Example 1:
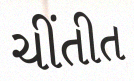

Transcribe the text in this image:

ચીંતીત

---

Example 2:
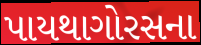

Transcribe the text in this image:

પાયથાગોરસના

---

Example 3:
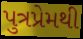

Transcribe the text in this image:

પુત્રપ્રેમથી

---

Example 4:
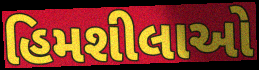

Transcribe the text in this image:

હિમશીલાઓ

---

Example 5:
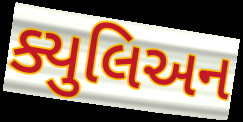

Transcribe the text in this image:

ક્યુલિઅન